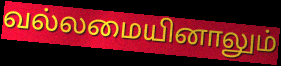
வல்லமையினாலும்